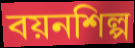
বয়নশিল্প